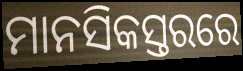
ମାନସିକସ୍ତରରେ